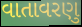
વાતાવરણુ